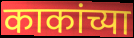
काकांच्या